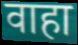
वाहा